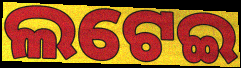
ଲଟେଇ